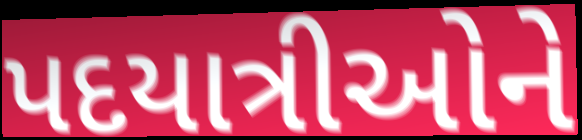
પદયાત્રીઓને